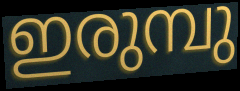
ഇരുമ്പു